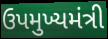
ઉપમુખ્યમંત્રી